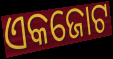
ଏକଜୋଟ